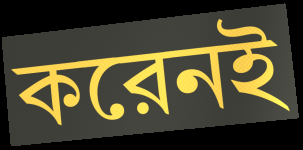
করেনই